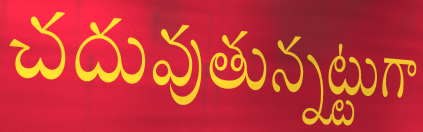
చదువుతున్నట్టుగా